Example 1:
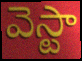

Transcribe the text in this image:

వెస్టా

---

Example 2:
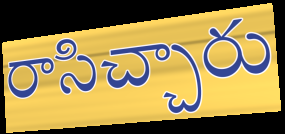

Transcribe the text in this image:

రాసిచ్చారు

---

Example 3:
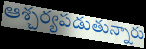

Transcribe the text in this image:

ఆశ్చర్యపడుతున్నారు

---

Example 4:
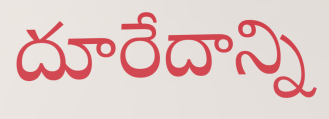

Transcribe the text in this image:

దూరేదాన్ని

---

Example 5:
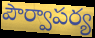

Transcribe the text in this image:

పౌర్వాపర్య